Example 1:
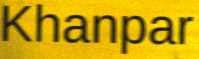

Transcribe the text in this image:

Khanpar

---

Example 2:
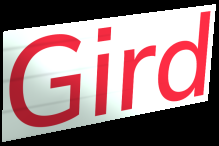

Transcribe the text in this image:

Gird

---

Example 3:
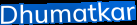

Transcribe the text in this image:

Dhumatkar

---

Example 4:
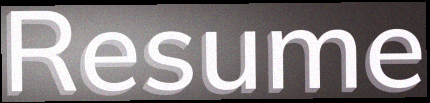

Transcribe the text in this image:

Resume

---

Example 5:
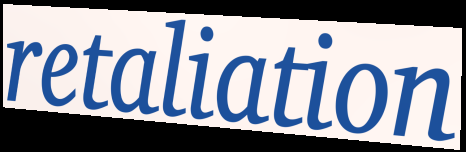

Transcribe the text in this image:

retaliation